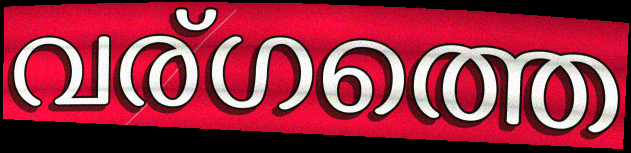
വര്ഗത്തെ